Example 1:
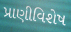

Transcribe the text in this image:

પ્રાણીવિશેષ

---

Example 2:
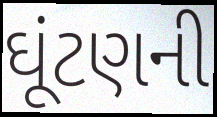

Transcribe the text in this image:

ઘૂંટણની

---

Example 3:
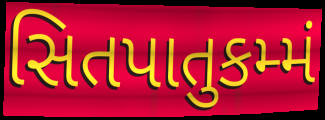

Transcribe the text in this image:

સિતપાતુકમ્મં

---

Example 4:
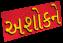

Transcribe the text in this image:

અશોકને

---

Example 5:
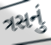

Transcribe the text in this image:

ત્રસનું